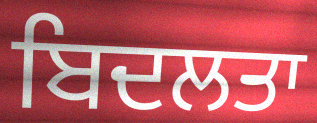
ਬਿਦਲਤਾ